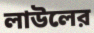
লাউলের